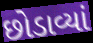
છોડાવ્યાં